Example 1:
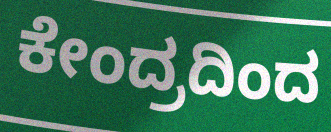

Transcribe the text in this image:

ಕೇಂದ್ರದಿಂದ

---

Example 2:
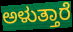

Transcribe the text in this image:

ಅಳುತ್ತಾರೆ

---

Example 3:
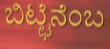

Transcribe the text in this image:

ಬಿಟ್ಟೆನೆಂಬ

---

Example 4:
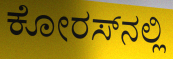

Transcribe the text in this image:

ಕೋರಸ್‌ನಲ್ಲಿ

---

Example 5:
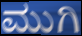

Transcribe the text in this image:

ಮುಗಿ